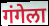
गंगेला